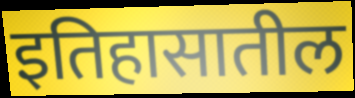
इतिहासातील